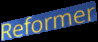
Reformer